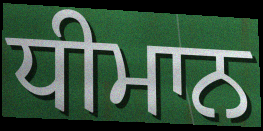
ਧੀਮਾਨ